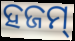
ହଜମ୍